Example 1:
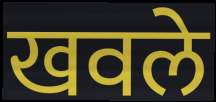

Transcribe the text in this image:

खवले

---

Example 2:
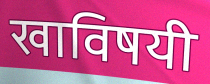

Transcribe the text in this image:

खाविषयी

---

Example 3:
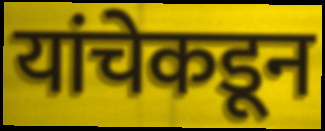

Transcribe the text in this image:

यांचेकडून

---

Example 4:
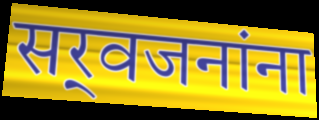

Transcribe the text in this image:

सर्वजनांना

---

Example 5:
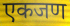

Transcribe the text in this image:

एकजण